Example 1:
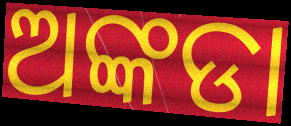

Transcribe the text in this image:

ଅଙ୍କଡା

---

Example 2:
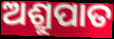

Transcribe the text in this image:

ଅଶ୍ରୁପାତ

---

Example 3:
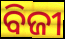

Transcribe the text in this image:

ବିଜୀ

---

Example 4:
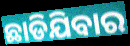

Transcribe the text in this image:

ଛାଡିଯିବାର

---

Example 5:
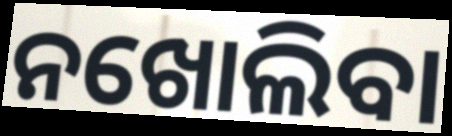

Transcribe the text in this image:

ନଖୋଲିବା